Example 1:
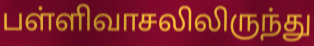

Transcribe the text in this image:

பள்ளிவாசலிலிருந்து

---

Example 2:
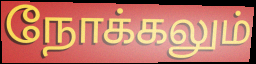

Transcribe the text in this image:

நோக்கலும்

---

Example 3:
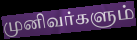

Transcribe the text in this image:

முனிவர்களும்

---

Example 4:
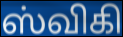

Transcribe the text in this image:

ஸ்விகி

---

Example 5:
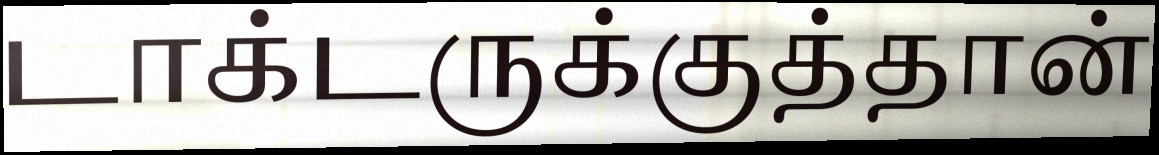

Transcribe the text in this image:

டாக்டருக்குத்தான்